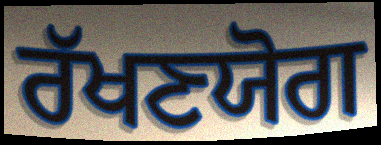
ਰੱਖਣਯੋਗ